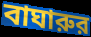
বাঘারুর